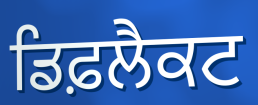
ਡਿਫ਼ਲੈਕਟ